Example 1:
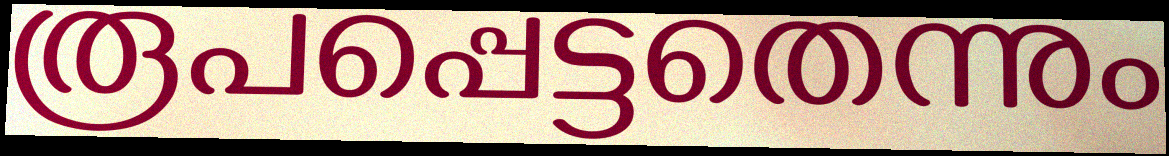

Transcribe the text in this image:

രൂപപ്പെട്ടതെന്നും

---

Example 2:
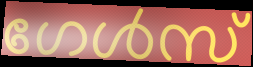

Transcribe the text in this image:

ഗേൾസ്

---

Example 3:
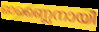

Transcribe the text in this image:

ഓണ്ലൈനായി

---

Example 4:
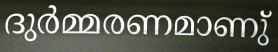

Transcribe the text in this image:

ദുർമ്മരണമാണു്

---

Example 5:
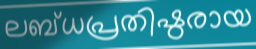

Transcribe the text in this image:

ലബ്ധപ്രതിഷ്ഠരായ